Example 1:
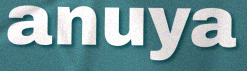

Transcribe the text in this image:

anuya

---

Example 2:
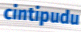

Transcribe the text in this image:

cintipudu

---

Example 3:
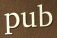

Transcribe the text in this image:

pub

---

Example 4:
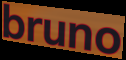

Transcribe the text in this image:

bruno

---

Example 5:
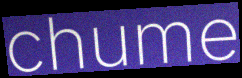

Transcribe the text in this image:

chume